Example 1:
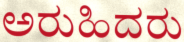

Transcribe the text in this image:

ಅರುಹಿದರು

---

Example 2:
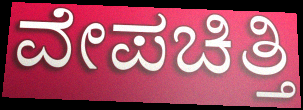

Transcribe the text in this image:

ವೇಪಚಿತ್ತಿ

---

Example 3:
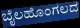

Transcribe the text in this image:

ಬೈಲಹೊಂಗಲದ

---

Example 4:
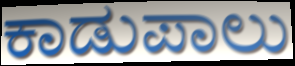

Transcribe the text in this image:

ಕಾಡುಪಾಲು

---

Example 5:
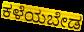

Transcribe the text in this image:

ಕಳೆಯಬೇಡ